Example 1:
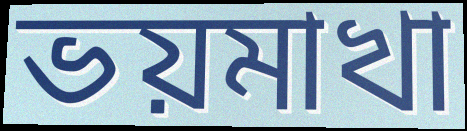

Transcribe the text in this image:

ভয়মাখা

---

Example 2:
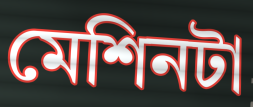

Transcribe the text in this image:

মেশিনটা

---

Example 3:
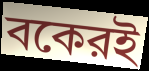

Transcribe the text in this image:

বকেরই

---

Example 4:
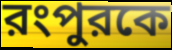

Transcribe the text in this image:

রংপুরকে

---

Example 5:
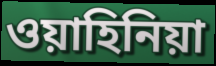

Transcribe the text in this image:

ওয়াহিনিয়া